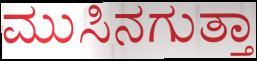
ಮುಸಿನಗುತ್ತಾ